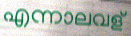
എന്നാലവള്